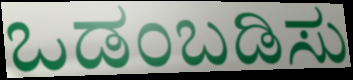
ಒಡಂಬಡಿಸು